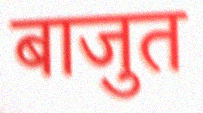
बाजुत